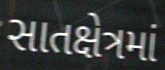
સાતક્ષેત્રમાં